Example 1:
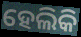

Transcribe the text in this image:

ହେଲିକି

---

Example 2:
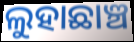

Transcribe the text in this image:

ଲୁହାଛାଞ୍ଚ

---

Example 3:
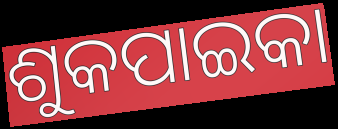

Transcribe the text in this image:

ଶୁକପାଇକା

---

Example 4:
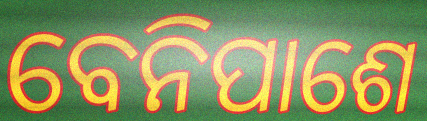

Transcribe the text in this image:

ବେନିପାଶେ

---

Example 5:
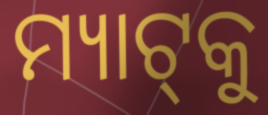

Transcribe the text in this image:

ମ୍ୟାଟ୍‌କୁ